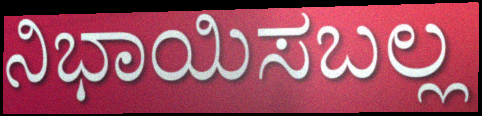
ನಿಭಾಯಿಸಬಲ್ಲ